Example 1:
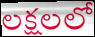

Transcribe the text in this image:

లక్షలలో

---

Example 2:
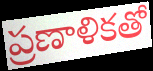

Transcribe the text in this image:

ప్రణాళికతో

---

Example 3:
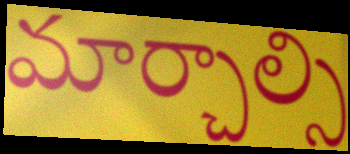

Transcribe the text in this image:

మార్చాల్సి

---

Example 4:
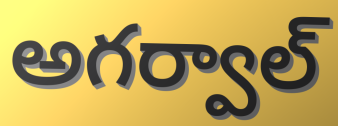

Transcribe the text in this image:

అగర్వాల్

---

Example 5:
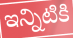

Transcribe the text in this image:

ఇన్నిటికి